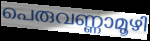
പെരുവണ്ണാമൂഴി